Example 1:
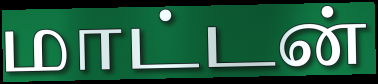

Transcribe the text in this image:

மாட்டன்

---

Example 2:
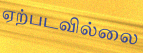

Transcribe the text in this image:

ஏற்படவில்லை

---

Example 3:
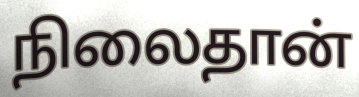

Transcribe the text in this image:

நிலைதான்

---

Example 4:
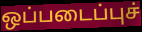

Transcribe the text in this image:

ஒப்படைப்புச்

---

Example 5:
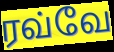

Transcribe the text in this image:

ரவ்வே